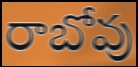
రాబోవు